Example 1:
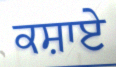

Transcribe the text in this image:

ਕਸ਼ਾਏ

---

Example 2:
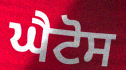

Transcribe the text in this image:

ਘੈਟੋਸ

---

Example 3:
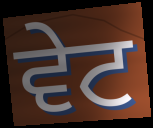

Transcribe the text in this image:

ਵੇਟ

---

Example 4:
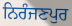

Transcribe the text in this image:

ਨਿਰੰਜਣਪੁਰ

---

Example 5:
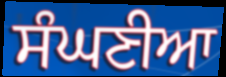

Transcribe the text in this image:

ਸੰਘਣੀਆ